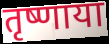
तृष्णाया